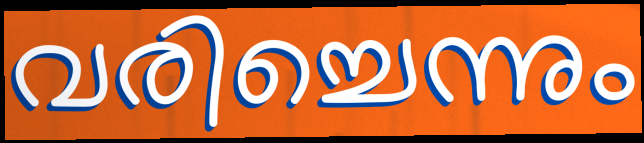
വരിച്ചെന്നും